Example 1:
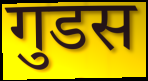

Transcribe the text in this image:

गुडस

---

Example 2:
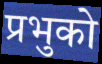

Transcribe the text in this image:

प्रभुको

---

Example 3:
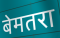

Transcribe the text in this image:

बेमतरा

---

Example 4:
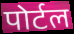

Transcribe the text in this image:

पोर्टल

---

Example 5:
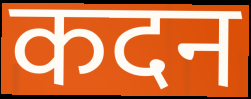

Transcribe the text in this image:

कदन